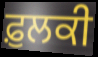
ਫ਼ੁਲਕੀ